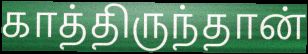
காத்திருந்தான்